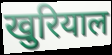
खुरियाल